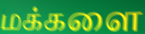
மக்களை